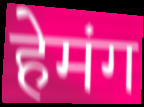
हेमंग